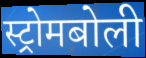
स्ट्रोमबोली